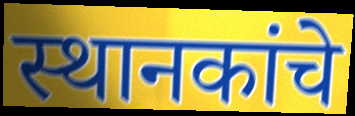
स्थानकांचे